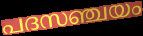
പദസഞ്ചയം